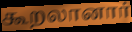
கூறலானார்